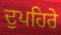
ਦੁਪਹਿਰੇ